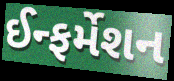
ઈન્ફર્મેશન